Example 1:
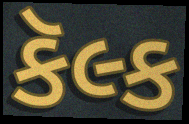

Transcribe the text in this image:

કૅલ્ક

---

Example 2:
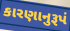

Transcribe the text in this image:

કારણાનુરૂપં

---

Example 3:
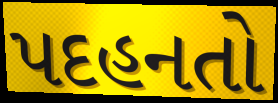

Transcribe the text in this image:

પદહનતો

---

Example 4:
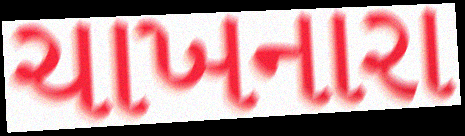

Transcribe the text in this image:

ચાખનારા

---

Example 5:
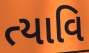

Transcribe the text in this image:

ત્યાવિ